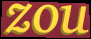
zou